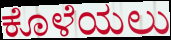
ಕೊಳೆಯಲು